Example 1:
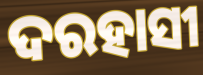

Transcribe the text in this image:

ଦରହାସୀ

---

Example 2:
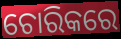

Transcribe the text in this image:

ଚୋରିକରେ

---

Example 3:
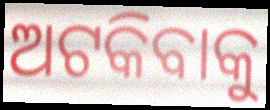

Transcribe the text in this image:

ଅଟକିବାକୁ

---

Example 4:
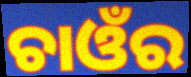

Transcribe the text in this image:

ଚାଓଁର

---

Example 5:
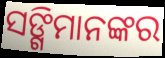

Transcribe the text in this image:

ସଙ୍ଗିମାନଙ୍କର